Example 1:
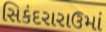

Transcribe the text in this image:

સિકંદરારાઉમાં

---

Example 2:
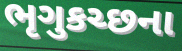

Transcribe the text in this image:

ભૃગુકચ્છના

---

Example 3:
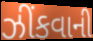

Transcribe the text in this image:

ઝીંકવાની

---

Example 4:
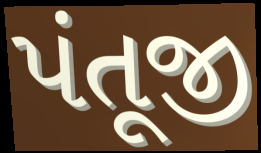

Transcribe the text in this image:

પંતૂજી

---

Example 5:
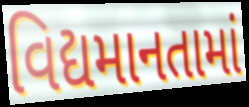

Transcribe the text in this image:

વિદ્યમાનતામાં